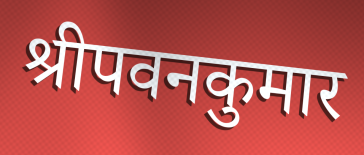
श्रीपवनकुमार